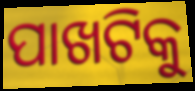
ପାଖଟିକୁ